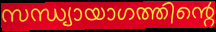
സന്ധ്യായാഗത്തിന്റെ